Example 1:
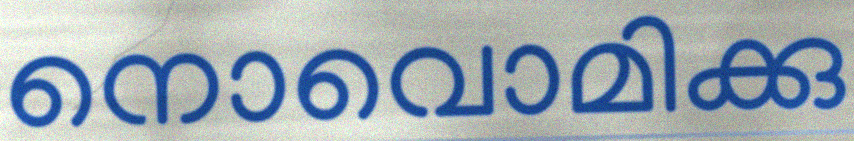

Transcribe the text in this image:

നൊവൊമിക്കു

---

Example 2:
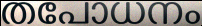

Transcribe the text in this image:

തപോധനം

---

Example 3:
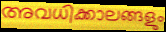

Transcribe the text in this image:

അവധിക്കാലങ്ങളും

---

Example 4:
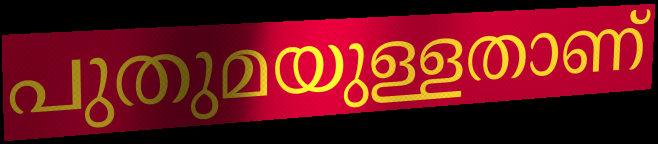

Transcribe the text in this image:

പുതുമയുള്ളതാണ്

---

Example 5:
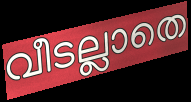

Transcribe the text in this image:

വീടല്ലാതെ